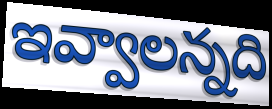
ఇవ్వాలన్నది